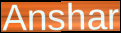
Anshar